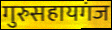
गुरुसहायगंज